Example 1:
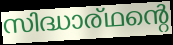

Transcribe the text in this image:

സിദ്ധാര്ഥന്റെ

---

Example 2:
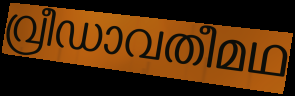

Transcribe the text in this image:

വ്രീഡാവതീമഥ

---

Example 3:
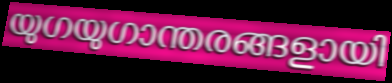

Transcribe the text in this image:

യുഗയുഗാന്തരങ്ങളായി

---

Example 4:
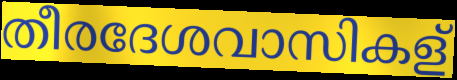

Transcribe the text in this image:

തീരദേശവാസികള്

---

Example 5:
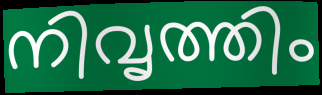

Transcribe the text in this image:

നിവൃത്തിം